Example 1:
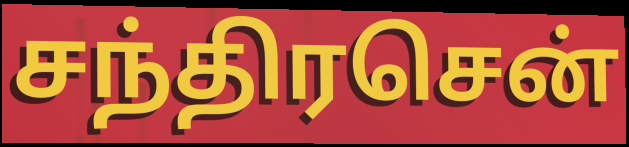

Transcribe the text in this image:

சந்திரசென்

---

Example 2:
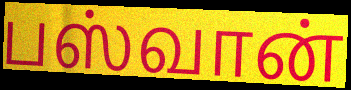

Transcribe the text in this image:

பஸ்வான்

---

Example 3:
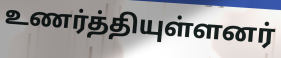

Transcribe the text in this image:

உணர்த்தியுள்ளனர்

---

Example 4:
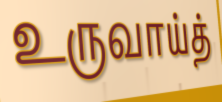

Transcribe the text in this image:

உருவாய்த்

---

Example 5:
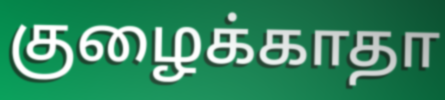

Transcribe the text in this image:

குழைக்காதா